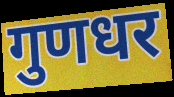
गुणधर